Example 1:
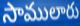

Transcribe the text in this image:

సాములారు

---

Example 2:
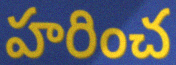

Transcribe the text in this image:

హరించ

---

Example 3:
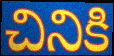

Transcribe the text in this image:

చినికి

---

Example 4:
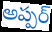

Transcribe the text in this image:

అప్పర్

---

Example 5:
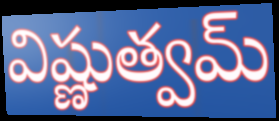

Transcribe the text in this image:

విష్ణుత్వమ్